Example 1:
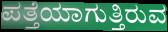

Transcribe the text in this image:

ಪತ್ತೆಯಾಗುತ್ತಿರುವ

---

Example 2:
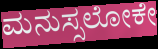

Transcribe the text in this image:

ಮನುಸ್ಸಲೋಕೇ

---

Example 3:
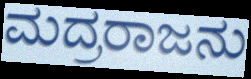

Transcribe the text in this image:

ಮದ್ರರಾಜನು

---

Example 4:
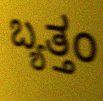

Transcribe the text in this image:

ಬ್ಯತ್ತಂ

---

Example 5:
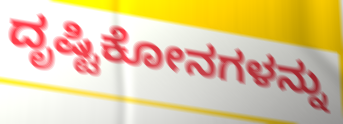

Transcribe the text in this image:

ದೃಷ್ಟಿಕೋನಗಳನ್ನು